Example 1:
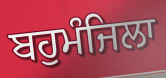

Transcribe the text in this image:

ਬਹੁਮੰਜਿਲਾ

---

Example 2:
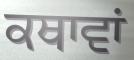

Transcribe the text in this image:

ਕਥਾਵਾਂ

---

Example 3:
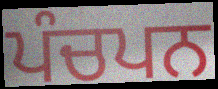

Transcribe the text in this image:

ਪੰਚਪਨ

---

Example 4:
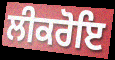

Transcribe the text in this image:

ਲੀਕਰੋਇ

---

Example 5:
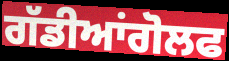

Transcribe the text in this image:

ਗੱਡੀਆਂਗੋਲਫ